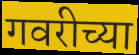
गवरीच्या